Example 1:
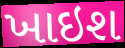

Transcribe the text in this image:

ખાઇશ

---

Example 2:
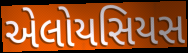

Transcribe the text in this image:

એલોયસિયસ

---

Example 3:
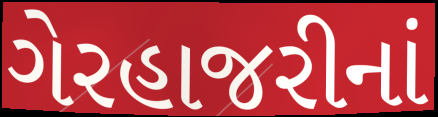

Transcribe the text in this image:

ગેરહાજરીનાં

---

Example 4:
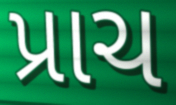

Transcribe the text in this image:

પ્રાચ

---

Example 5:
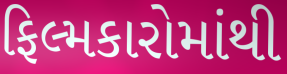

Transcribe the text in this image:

ફિલ્મકારોમાંથી